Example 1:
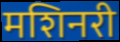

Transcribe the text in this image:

मशिनरी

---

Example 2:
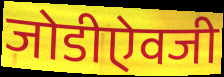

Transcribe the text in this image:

जोडीऐवजी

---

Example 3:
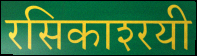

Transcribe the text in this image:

रसिकाश्रयी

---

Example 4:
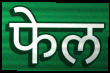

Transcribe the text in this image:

फेल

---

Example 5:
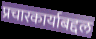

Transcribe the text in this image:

प्रचारकार्याबद्दल